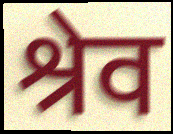
श्रेव